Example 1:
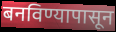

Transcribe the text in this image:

बनविण्यापासून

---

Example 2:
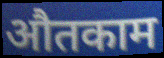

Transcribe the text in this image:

औतकाम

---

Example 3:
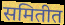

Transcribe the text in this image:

समितीत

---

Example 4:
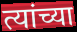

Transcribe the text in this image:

त्यांच्या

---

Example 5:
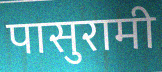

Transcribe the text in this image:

पासुरामी